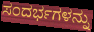
ಸಂದರ್ಭಗಳನ್ನು